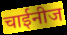
चाईनीज